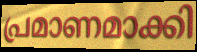
പ്രമാണമാക്കി